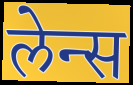
लेन्स